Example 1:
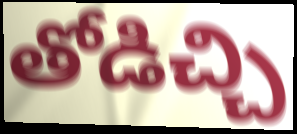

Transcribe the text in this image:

తోడిచ్చి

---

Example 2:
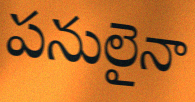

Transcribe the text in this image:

పనులైనా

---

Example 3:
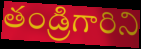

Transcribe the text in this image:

తండ్రిగారిని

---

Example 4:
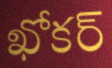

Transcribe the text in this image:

ఖోకర్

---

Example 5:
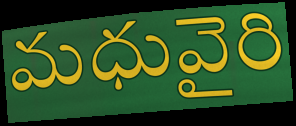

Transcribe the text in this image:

మధువైరి